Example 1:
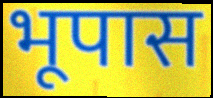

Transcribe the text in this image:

भूपास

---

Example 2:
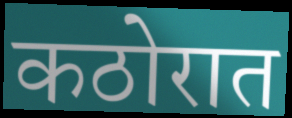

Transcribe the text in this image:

कठोरात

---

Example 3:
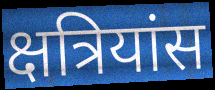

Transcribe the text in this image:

क्षत्रियांस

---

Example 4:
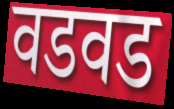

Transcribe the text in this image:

वडवड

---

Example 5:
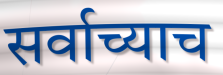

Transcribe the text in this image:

सर्वाच्याच